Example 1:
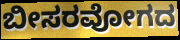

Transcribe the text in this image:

ಬೀಸರವೋಗದ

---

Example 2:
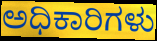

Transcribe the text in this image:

ಅಧಿಕಾರಿಗಳು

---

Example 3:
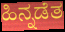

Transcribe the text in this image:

ಹಿನ್ನಡೆತ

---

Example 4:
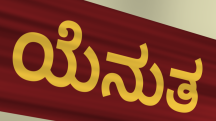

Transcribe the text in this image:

ಯೆನುತ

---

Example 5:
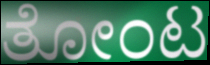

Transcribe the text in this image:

ತೋಂಟ